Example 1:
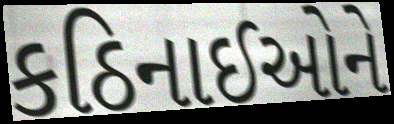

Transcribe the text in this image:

કઠિનાઈઓને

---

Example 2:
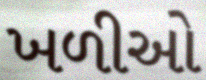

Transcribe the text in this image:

ખળીઓ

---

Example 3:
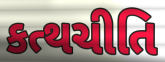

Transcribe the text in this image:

કત્થચીતિ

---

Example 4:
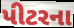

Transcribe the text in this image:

પીટરના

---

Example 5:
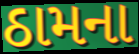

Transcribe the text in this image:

ઠામના